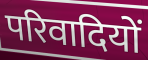
परिवादियों